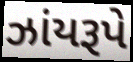
ઝાંયરૂપે